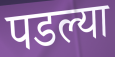
पडल्या